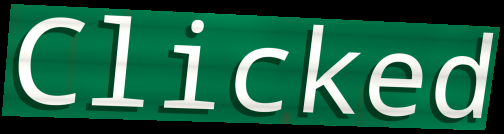
Clicked